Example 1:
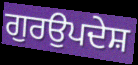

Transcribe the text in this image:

ਗੁਰਉਪਦੇਸ਼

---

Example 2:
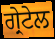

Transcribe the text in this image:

ਗ੍ਰੇਟੇਲ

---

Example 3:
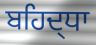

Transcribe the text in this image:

ਬਹਿਦ੍ਧਾ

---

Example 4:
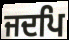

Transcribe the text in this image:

ਜਦਪਿ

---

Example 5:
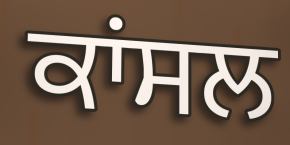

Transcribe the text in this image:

ਕਾਂਸਲ